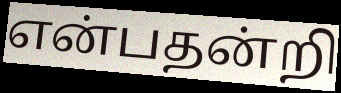
என்பதன்றி